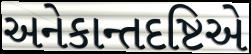
અનેકાન્તદષ્ટિએ